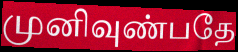
முனிவுண்பதே